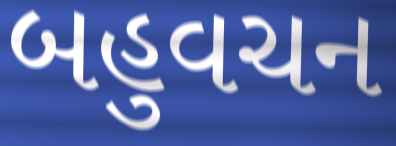
બહુવચન